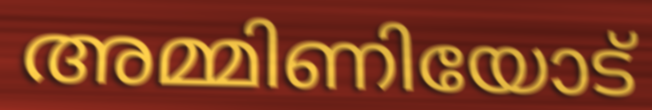
അമ്മിണിയോട്